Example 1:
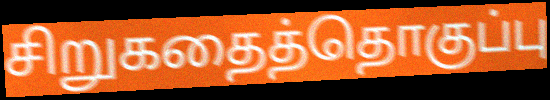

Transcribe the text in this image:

சிறுகதைத்தொகுப்பு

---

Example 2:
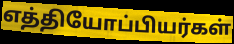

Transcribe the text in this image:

எத்தியோப்பியர்கள்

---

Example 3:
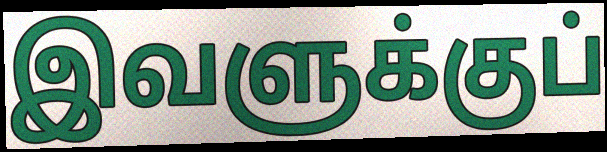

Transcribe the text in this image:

இவளுக்குப்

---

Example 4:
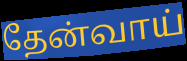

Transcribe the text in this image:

தேன்வாய்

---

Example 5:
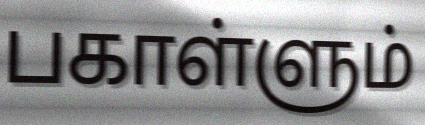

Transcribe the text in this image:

பகாள்ளும்